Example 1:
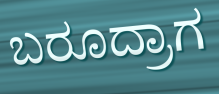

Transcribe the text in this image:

ಬರೂದ್ರಾಗ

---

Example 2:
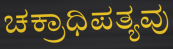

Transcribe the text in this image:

ಚಕ್ರಾಧಿಪತ್ಯವು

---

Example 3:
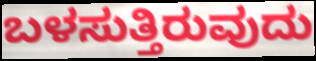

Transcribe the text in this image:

ಬಳಸುತ್ತಿರುವುದು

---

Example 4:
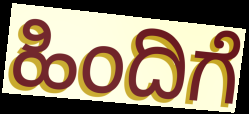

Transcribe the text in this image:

ಹಿಂದಿಗೆ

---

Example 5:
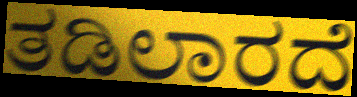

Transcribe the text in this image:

ತಡಿಲಾರದೆ